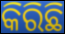
କିରିଛି